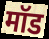
मॉड